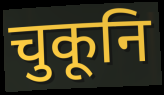
चुकूनि